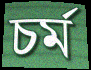
চৰ্ম